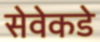
सेवेकडे